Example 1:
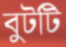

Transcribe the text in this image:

বুটটি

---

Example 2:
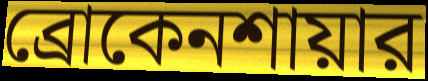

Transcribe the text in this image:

ব্রোকেনশায়ার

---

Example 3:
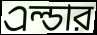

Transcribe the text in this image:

এল্ডার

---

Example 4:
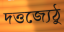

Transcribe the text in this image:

দত্তজ্যেঠু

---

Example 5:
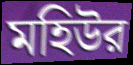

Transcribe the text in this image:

মহিউর